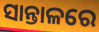
ସାନ୍ତାଳରେ